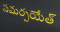
సమర్పయేత్